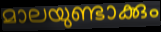
മാലയുണ്ടാക്കും